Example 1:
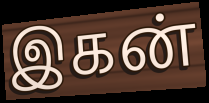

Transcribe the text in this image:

இகன்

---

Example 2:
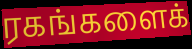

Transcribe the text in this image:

ரகங்களைக்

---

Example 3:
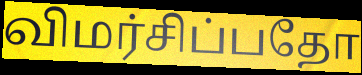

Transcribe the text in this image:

விமர்சிப்பதோ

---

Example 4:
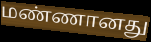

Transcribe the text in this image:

மண்ணானது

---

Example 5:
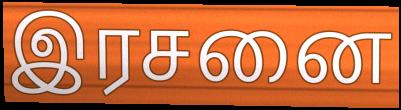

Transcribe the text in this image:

இரசனை